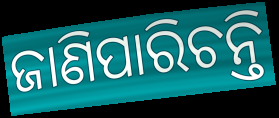
ଜାଣିପାରିଚନ୍ତି